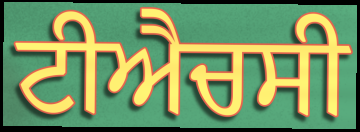
ਟੀਐਚਸੀ